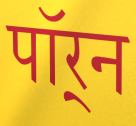
पॉर्न